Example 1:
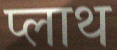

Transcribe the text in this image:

प्लाथ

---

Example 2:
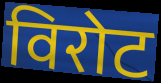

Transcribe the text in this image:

विरोट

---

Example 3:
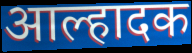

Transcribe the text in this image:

आल्हादक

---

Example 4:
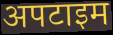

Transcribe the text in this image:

अपटाइम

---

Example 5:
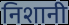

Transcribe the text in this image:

निशानी